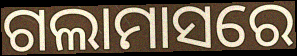
ଗଲାମାସରେ